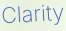
Clarity